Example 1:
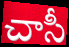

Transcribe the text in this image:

చాసీ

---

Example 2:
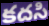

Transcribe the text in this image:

కదసి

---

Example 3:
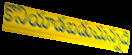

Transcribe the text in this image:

కొనియాడబడుచున్నది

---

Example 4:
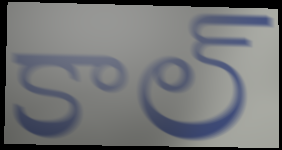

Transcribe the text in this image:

కాల్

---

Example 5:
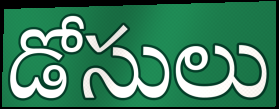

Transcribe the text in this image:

డోసులు